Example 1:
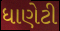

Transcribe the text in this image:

ધાણેટી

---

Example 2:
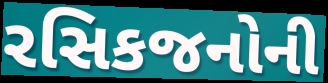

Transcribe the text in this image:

રસિકજનોની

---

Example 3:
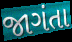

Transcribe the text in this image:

જાગંતા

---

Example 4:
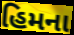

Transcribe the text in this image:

હિમના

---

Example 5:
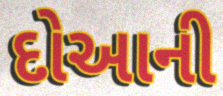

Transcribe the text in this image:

દોઆની